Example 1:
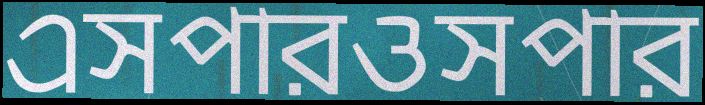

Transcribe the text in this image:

এসপারওসপার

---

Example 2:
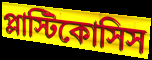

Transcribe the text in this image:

প্লাস্টিকোসিস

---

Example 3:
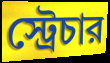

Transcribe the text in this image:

স্ট্রেচার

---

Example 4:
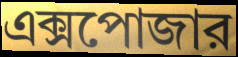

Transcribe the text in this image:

এক্সপোজার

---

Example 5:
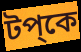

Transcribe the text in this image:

টপ্কে